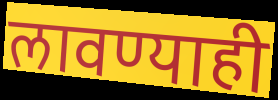
लावण्याही